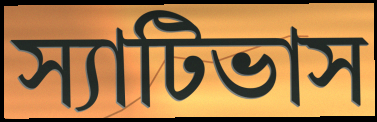
স্যাটিভাস